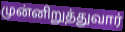
முன்னிறுத்துவார்